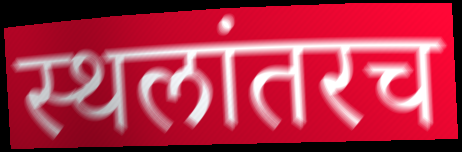
स्थलांतरच